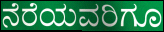
ನೆರೆಯವರಿಗೂ